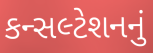
કન્સલ્ટેશનનું